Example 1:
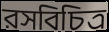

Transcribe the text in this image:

রসবিচিত্র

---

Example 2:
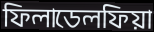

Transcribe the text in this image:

ফিলাডেলফিয়া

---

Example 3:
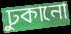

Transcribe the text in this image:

ঢুকানো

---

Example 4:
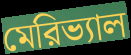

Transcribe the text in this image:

মেরিভ্যাল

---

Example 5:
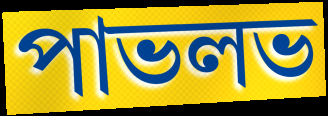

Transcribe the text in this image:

পাভলভ